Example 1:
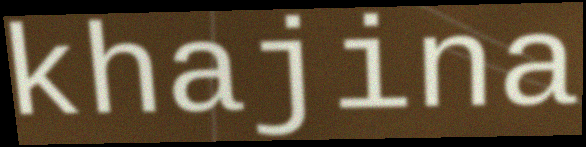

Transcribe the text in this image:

khajina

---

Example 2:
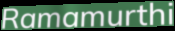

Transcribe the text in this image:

Ramamurthi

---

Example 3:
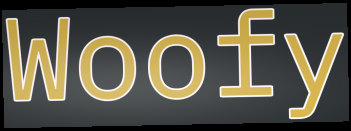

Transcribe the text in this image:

Woofy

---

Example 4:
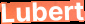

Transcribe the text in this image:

Lubert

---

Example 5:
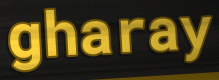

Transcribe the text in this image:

gharay